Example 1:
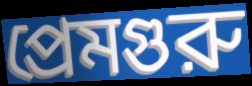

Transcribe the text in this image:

প্রেমগুরু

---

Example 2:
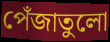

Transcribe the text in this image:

পেঁজাতুলো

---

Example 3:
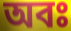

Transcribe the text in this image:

অবঃ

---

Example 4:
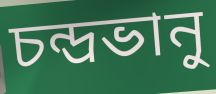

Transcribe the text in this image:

চন্দ্রভানু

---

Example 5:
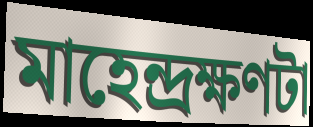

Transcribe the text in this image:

মাহেন্দ্রক্ষণটা